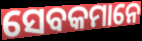
ସେବକମାନେ